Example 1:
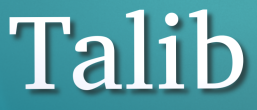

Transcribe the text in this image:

Talib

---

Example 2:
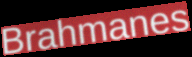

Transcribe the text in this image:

Brahmanes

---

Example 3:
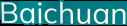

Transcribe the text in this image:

Baichuan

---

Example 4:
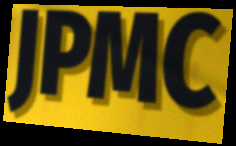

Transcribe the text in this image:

JPMC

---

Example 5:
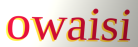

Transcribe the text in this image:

owaisi